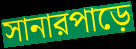
সানারপাড়ে